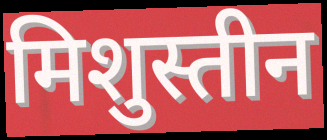
मिशुस्तीन